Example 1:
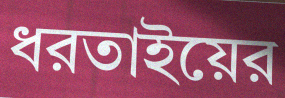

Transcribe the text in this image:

ধরতাইয়ের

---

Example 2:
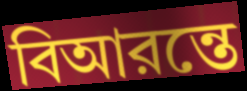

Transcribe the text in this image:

বিআরন্তে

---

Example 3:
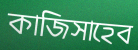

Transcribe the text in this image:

কাজিসাহেব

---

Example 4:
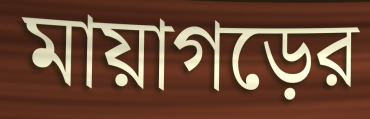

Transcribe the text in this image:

মায়াগড়ের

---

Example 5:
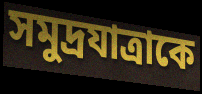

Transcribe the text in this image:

সমুদ্রযাত্রাকে